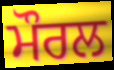
ਮੌਰਲ